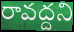
రావద్దని